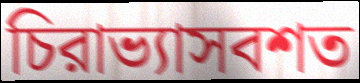
চিরাভ্যাসবশত